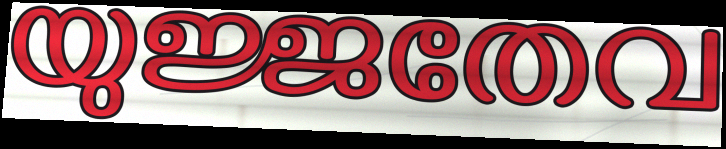
യുജ്ജതേവ